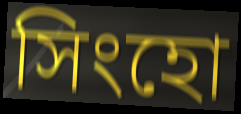
সিংহো